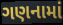
ગણનામાં